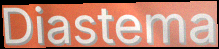
Diastema